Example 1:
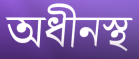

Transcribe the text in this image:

অধীনস্থ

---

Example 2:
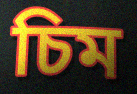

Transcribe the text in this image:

চিম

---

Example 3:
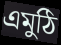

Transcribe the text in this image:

এমুঠি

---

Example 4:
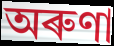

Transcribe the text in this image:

অৰুণা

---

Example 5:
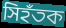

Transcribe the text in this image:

সিহঁতক